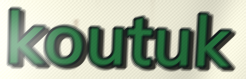
koutuk